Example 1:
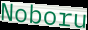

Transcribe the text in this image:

Noboru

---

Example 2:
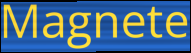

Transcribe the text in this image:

Magnete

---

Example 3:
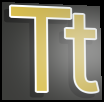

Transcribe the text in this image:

Tt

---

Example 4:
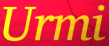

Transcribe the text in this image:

Urmi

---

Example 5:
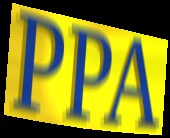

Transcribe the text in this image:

PPA